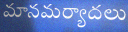
మానమర్యాదలు